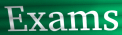
Exams